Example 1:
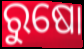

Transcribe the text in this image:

ରୁଷୋ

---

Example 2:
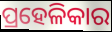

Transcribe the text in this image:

ପ୍ରହେଳିକାର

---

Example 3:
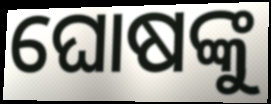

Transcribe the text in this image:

ଘୋଷଙ୍କୁ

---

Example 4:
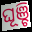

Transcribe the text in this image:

ଘୂଞ୍ଚି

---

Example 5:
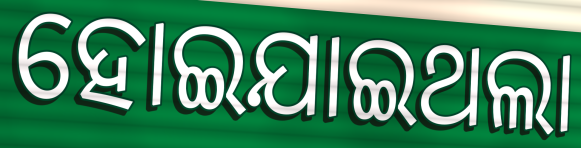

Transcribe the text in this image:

ହୋଇଯାଇଥଲା